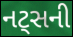
નટ્સની